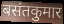
बसंतकुमार